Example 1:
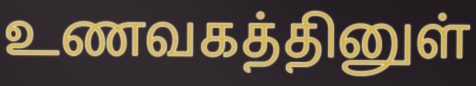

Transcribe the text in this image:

உணவகத்தினுள்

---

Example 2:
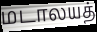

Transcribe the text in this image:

மடாலயத்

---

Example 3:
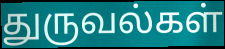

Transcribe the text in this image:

துருவல்கள்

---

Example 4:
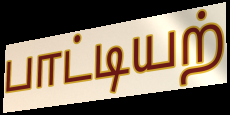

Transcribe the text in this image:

பாட்டியற்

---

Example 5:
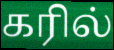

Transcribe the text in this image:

கரில்